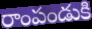
రాంపండుకి